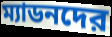
ম্যাডনদের